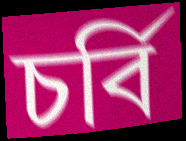
চৰ্বি